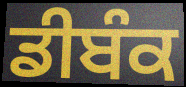
ਡੀਬੰਕ